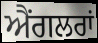
ਐਂਗਲਰਾਂ